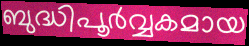
ബുദ്ധിപൂർവ്വകമായ